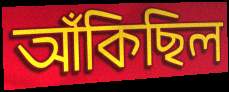
আঁকিছিল